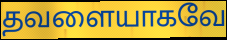
தவளையாகவே